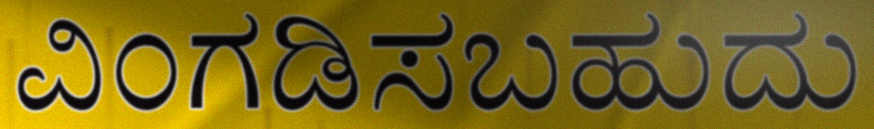
ವಿಂಗಡಿಸಬಹುದು